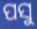
ପସୁ